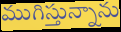
ముగిస్తున్నాను